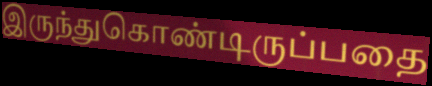
இருந்துகொண்டிருப்பதை